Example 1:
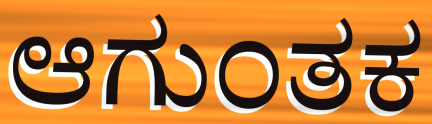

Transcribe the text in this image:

ಆಗುಂತಕ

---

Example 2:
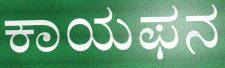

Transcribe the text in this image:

ಕಾಯಫನ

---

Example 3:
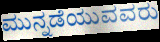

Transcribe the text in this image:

ಮುನ್ನಡೆಯುವವರು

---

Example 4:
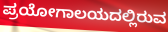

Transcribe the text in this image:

ಪ್ರಯೋಗಾಲಯದಲ್ಲಿರುವ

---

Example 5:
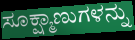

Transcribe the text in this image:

ಸೂಕ್ಷ್ಮಾಣುಗಳನ್ನು